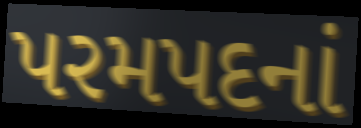
પરમપદનાં